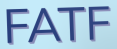
FATF